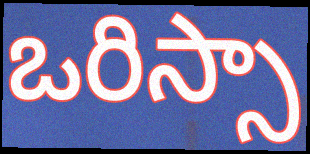
ఒరిస్సా